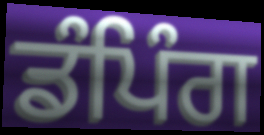
ਡੰਪਿੰਗ